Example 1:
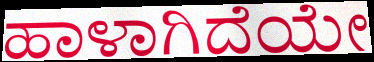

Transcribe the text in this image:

ಹಾಳಾಗಿದೆಯೇ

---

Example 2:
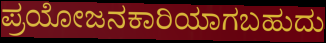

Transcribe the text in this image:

ಪ್ರಯೋಜನಕಾರಿಯಾಗಬಹುದು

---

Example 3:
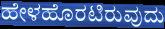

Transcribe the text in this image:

ಹೇಳಹೊರಟಿರುವುದು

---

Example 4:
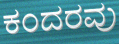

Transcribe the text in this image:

ಕಂದರವು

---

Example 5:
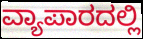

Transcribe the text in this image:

ವ್ಯಾಪಾರದಲ್ಲಿ